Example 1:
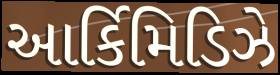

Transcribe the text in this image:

આર્કિમિડિઝે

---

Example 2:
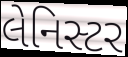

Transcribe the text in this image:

લેનિસ્ટર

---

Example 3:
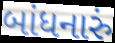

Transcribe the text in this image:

બાંધનારું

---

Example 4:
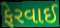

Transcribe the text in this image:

ફેરવાઈ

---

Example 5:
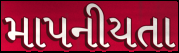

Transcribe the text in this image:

માપનીયતા